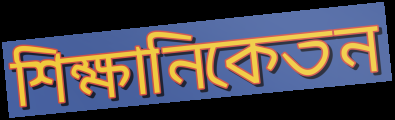
শিক্ষানিকেতন